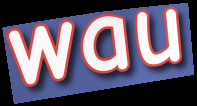
wau